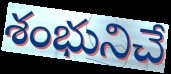
శంభునిచే